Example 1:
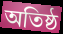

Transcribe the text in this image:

অতিষ্ঠ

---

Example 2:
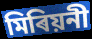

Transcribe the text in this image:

মিৰিয়নী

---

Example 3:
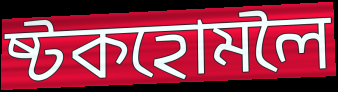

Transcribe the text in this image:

ষ্টকহোমলৈ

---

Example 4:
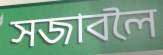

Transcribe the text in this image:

সজাবলৈ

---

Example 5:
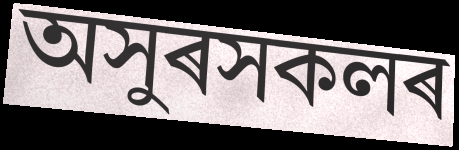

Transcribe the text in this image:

অসুৰসকলৰ